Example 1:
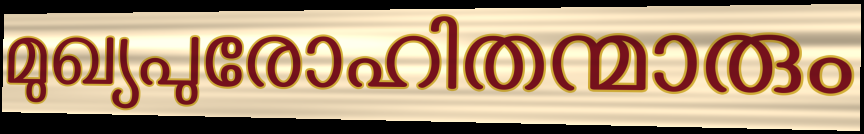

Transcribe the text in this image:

മുഖ്യപുരോഹിതന്മാരും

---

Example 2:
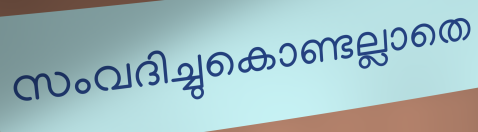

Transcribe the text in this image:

സംവദിച്ചുകൊണ്ടല്ലാതെ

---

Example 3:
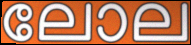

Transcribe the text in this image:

ലോല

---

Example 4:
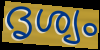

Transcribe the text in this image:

ദൃശ്യം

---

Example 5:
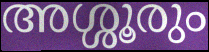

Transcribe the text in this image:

അശ്ശൂരും